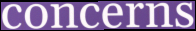
concerns